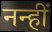
नन्‍हीं